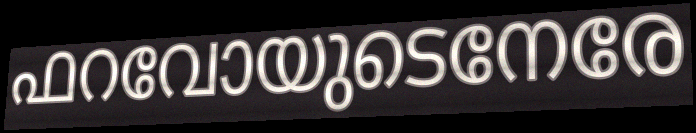
ഫറവോയുടെനേരേ